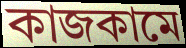
কাজকামে